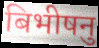
बिभीषनु